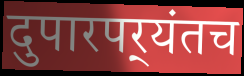
दुपारपर्यंतच